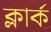
ক্লার্ক